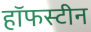
हॉफस्टीन